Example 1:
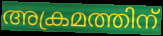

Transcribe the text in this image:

അക്രമത്തിന്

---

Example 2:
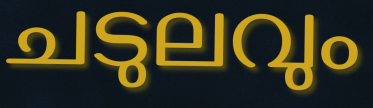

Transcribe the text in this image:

ചടുലവും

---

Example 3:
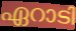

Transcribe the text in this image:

ഏറാടി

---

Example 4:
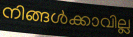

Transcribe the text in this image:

നിങ്ങൾക്കാവില്ല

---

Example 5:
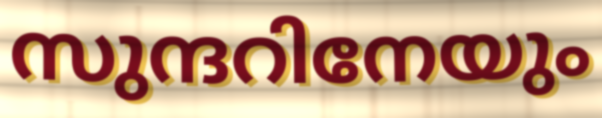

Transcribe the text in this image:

സുന്ദറിനേയും